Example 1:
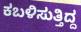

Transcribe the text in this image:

ಕಬಳಿಸುತ್ತಿದ್ದ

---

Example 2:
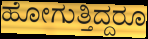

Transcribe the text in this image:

ಹೋಗುತ್ತಿದ್ದರೂ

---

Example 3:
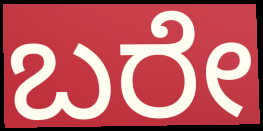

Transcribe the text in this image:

ಬರೇ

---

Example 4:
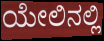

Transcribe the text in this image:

ಯೇಲಿನಲ್ಲಿ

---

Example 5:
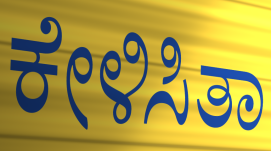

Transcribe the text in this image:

ಕೇಳಿಸಿತಾ